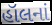
હૉલનાં